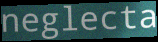
neglecta